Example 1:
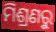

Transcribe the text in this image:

ମିଶ୍ରଣରୁ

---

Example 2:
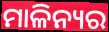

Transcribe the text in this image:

ମାଳିନ୍ୟର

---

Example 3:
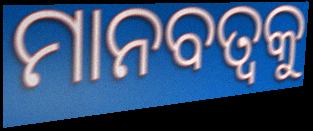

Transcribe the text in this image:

ମାନବତ୍ବକୁ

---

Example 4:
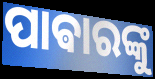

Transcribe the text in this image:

ପାଵାରଙ୍କୁ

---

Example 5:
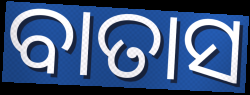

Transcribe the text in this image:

ବାତାସ